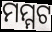
ମମ୍ମଟ